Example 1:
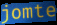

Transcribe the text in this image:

jomte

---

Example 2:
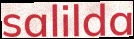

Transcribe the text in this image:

salilda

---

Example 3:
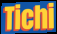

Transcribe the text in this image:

Tichi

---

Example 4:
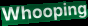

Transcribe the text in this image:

Whooping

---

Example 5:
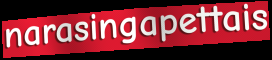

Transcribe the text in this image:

narasingapettais